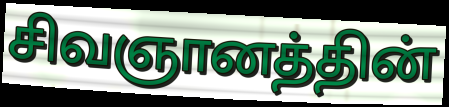
சிவஞானத்தின்